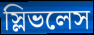
স্লিভলেস